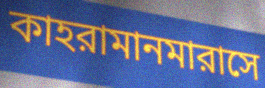
কাহরামানমারাসে